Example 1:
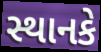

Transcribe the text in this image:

સ્થાનકે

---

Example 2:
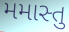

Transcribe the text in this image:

મમાસ્તુ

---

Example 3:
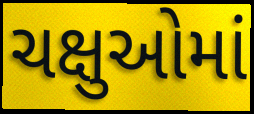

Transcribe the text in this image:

ચક્ષુઓમાં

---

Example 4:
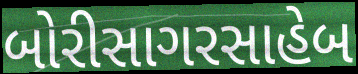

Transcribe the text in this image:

બોરીસાગરસાહેબ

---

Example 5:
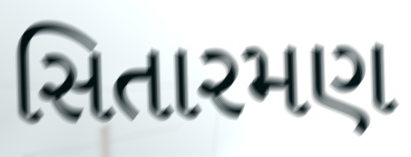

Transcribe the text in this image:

સિતારમણ